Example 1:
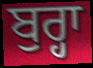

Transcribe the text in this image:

ਬੁਰ੍ਹਾ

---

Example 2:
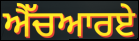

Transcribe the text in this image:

ਐੱਚਆਰਏ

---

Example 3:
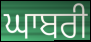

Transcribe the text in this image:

ਘਾਬਰੀ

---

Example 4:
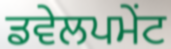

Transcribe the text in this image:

ਡਵੇਲਪਮੇਂਟ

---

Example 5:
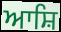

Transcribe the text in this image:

ਆਸ਼ਿ